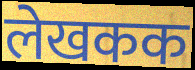
लेखकक